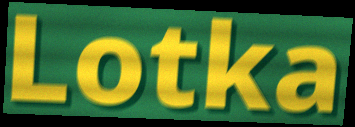
Lotka